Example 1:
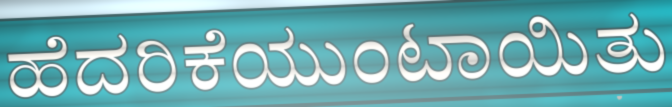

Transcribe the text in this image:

ಹೆದರಿಕೆಯುಂಟಾಯಿತು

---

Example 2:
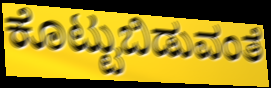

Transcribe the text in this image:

ಕೊಟ್ಟುಬಿಡುವಂತೆ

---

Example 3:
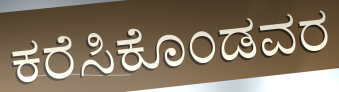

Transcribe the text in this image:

ಕರೆಸಿಕೊಂಡವರ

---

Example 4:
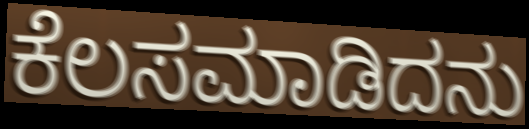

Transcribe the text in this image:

ಕೆಲಸಮಾಡಿದನು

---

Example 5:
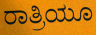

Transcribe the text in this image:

ರಾತ್ರಿಯೂ